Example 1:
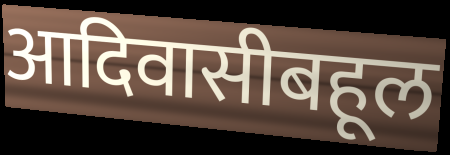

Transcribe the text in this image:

आदिवासीबहूल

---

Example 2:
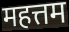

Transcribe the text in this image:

महत्तम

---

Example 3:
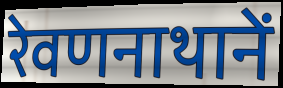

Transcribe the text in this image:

रेवणनाथानें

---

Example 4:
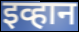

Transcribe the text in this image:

इव्हान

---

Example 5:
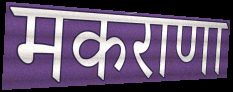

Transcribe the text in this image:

मकराणा